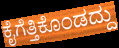
ಕೈಗೆತ್ತಿಕೊಂಡದ್ದು